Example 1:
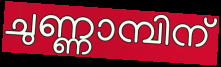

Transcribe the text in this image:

ചുണ്ണാമ്പിന്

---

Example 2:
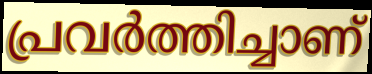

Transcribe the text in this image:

പ്രവർത്തിച്ചാണ്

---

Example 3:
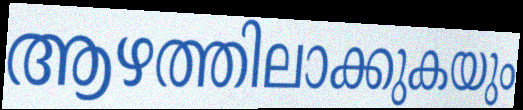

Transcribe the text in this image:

ആഴത്തിലാക്കുകയും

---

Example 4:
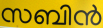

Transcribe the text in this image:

സബിൻ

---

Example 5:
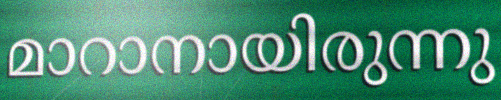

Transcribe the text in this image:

മാറാനായിരുന്നു